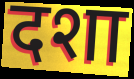
दशा